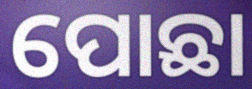
ପୋଛା